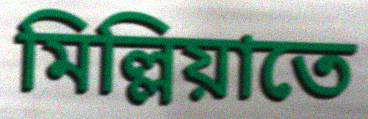
মিল্লিয়াতে